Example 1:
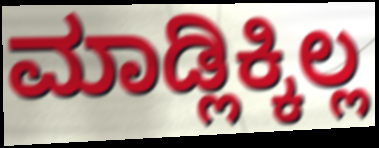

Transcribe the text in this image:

ಮಾಡ್ಲಿಕ್ಕಿಲ್ಲ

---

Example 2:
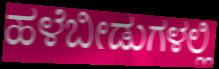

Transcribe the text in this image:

ಹಳೆಬೀಡುಗಳಲ್ಲಿ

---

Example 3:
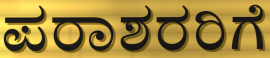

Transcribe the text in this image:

ಪರಾಶರರಿಗೆ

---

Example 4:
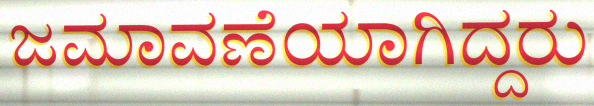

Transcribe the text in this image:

ಜಮಾವಣೆಯಾಗಿದ್ದರು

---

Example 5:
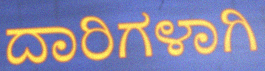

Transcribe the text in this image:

ದಾರಿಗಳಾಗಿ